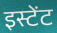
इस्टेंट